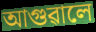
আগুৱালে